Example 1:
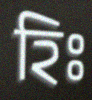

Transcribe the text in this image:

হিঃ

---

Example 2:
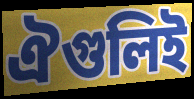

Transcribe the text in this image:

ঐগুলিই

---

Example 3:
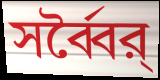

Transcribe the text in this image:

সর্ব্বৈর্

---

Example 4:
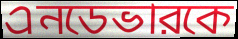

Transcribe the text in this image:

এনডেভারকে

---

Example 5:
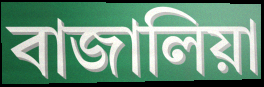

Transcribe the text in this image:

বাজালিয়া